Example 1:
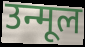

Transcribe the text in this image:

उन्मूल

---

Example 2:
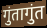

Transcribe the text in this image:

गुंतागुंत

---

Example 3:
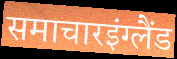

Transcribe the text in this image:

समाचारइंग्लैंड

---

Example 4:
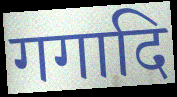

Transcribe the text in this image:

गगादि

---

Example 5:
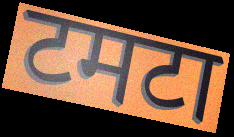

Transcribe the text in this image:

टमटा